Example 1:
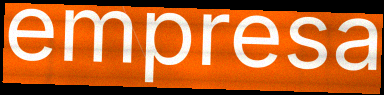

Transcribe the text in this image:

empresa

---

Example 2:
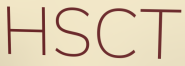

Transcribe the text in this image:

HSCT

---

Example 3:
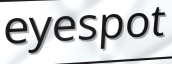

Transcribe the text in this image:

eyespot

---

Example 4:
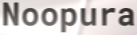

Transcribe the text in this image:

Noopura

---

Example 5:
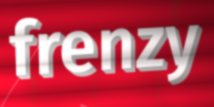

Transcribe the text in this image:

frenzy